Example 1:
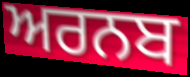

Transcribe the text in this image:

ਅਰਨਬ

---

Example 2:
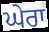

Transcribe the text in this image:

ਘੇਰਾ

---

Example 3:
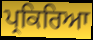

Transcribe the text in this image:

ਪ੍ਰਕਿਰਿਆ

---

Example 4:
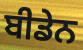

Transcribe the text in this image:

ਬੀਡੇਨ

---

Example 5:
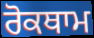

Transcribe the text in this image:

ਰੋਕਥਾਮ